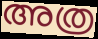
അത്ര